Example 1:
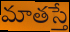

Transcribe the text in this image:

మాతస్తే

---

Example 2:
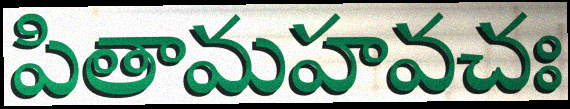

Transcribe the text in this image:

పితామహవచః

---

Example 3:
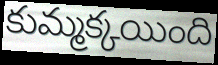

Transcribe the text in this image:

కుమ్మక్కయింది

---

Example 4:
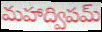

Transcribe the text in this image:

మహాద్విపమ్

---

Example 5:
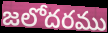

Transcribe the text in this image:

జలోదరము